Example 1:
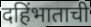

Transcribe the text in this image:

दहिंभाताची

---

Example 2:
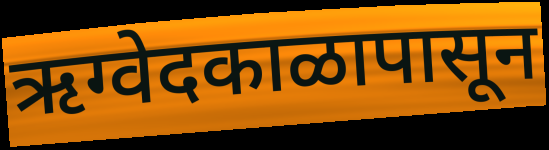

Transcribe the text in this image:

ऋग्वेदकाळापासून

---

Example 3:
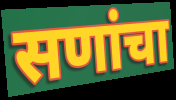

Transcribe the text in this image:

सणांचा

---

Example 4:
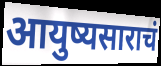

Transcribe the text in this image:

आयुष्यसाराचं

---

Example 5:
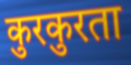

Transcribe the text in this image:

कुरकुरता